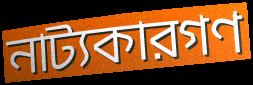
নাট্যকারগণ